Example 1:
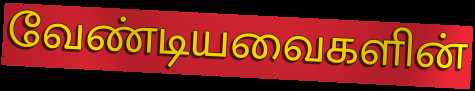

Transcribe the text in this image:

வேண்டியவைகளின்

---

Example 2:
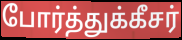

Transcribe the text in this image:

போர்த்துக்கீசர்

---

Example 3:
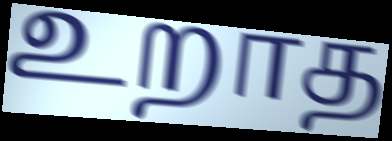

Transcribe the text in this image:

உறாத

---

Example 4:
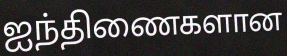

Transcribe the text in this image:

ஐந்திணைகளான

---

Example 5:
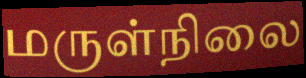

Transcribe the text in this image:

மருள்நிலை